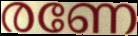
രണേ